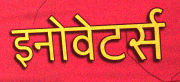
इनोवेटर्स